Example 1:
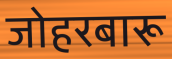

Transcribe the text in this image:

जोहरबारू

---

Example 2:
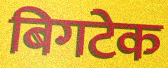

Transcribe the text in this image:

बिगटेक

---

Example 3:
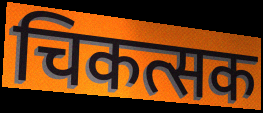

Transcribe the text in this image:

चिकत्सक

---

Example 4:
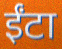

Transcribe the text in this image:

ईंटा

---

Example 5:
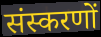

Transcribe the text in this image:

संस्करणों